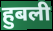
हुबली